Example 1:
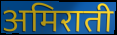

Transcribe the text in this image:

अमिराती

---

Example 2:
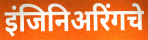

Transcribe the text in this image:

इंजिनिअरिंगचे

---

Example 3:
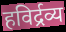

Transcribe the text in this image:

हविर्द्रव्य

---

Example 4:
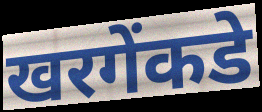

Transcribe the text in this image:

खरगेंकडे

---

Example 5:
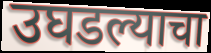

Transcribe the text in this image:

उघडल्याचा